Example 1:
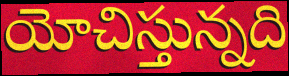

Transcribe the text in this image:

యోచిస్తున్నది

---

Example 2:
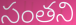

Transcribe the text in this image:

సంతని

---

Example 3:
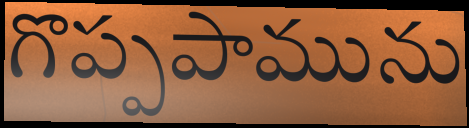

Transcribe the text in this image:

గొప్పపామును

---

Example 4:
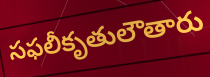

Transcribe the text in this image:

సఫలీకృతులౌతారు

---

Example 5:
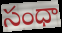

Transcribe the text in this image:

సంధా